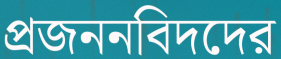
প্রজননবিদদের